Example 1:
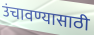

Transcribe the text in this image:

उंचावण्यासाठी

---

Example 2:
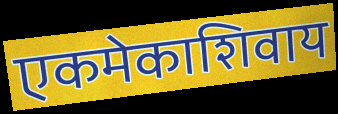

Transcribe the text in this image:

एकमेकाशिवाय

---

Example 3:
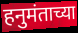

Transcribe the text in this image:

हनुमंताच्या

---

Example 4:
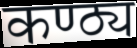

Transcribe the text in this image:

कण्ठ्य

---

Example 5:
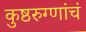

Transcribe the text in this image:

कुष्ठरुग्णांचं